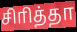
சிரித்தா